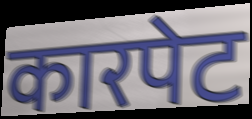
कारपेट